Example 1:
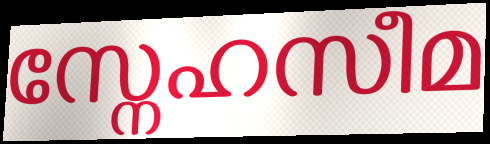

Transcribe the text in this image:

സ്നേഹസീമ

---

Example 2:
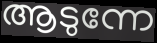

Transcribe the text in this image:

ആടുന്നേ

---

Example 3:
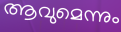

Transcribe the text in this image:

ആവുമെന്നും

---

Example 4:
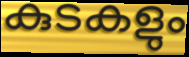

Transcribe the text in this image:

കുടകളും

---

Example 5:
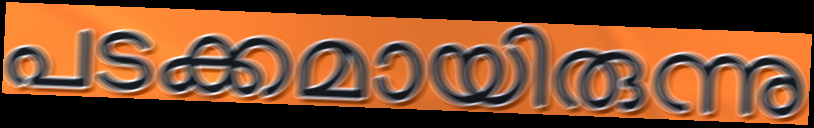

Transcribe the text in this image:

പടക്കമായിരുന്നു